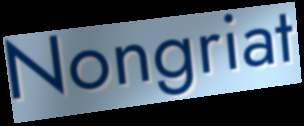
Nongriat